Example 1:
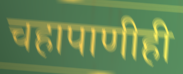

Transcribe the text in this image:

चहापाणीही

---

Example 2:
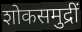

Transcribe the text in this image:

शोकसमुद्रीं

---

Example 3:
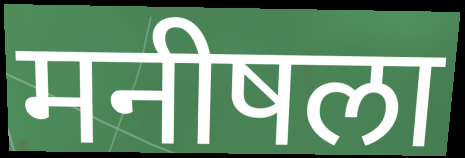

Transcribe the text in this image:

मनीषला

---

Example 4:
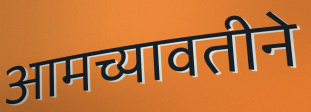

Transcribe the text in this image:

आमच्यावतीने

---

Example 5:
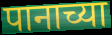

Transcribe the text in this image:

पानाच्या